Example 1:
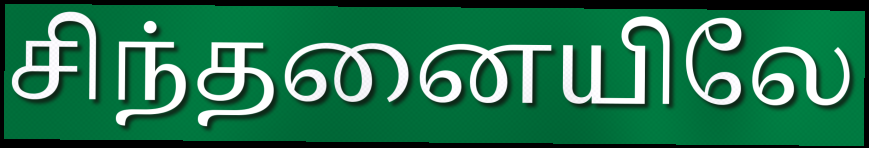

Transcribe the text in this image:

சிந்தனையிலே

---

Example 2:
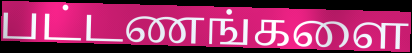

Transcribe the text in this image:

பட்டணங்களை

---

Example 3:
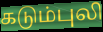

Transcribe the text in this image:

கடும்புலி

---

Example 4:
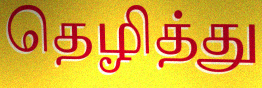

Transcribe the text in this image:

தெழித்து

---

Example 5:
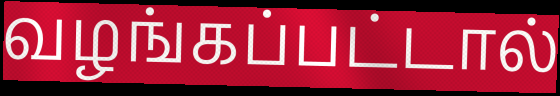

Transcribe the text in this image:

வழங்கப்பட்டால்